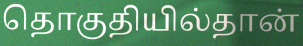
தொகுதியில்தான்